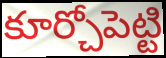
కూర్చోపెట్టి